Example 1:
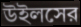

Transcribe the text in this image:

উইলসের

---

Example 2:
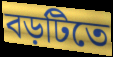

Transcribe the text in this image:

বড়টিতে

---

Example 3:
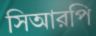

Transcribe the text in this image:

সিআরপি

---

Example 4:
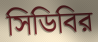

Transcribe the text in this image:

সিডিবির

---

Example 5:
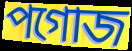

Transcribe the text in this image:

পগোজ